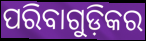
ପରିବାଗୁଡ଼ିକର